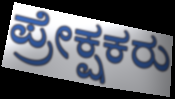
ಪ್ರೇಕ್ಷಕರು